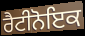
ਰੈਟੀਨੋਇਕ